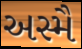
અસ્મૈ